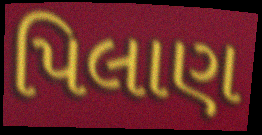
પિલાણ